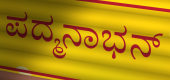
ಪದ್ಮನಾಭನ್